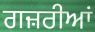
ਗਜ਼ਰੀਆਂ